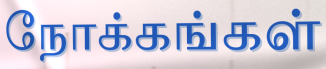
நோக்கங்கள்